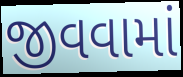
જીવવામાં